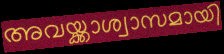
അവയ്ക്കാശ്വാസമായി